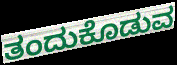
ತಂದುಕೊಡುವ